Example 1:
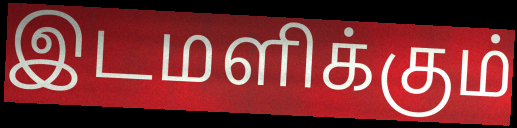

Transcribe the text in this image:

இடமளிக்கும்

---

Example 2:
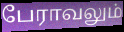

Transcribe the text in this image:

பேராவலும்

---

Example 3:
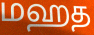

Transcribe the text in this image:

மஹத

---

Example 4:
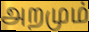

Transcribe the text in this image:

அறமும்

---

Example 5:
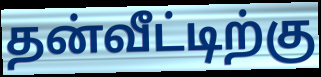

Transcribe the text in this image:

தன்வீட்டிற்கு